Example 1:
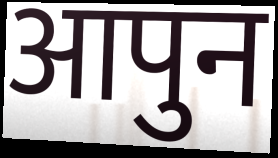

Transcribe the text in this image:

आपुन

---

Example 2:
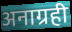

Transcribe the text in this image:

अनाग्रही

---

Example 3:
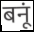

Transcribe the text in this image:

बनूं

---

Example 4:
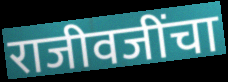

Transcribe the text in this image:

राजीवजींचा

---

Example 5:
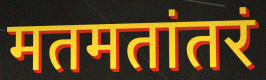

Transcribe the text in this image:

मतमतांतरं